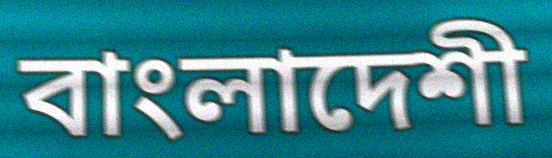
বাংলাদেশী